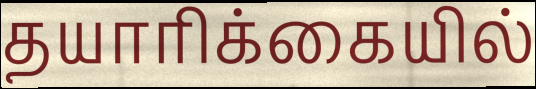
தயாரிக்கையில்